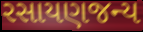
રસાયણજન્ય